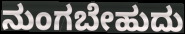
ನುಂಗಬೇಹುದು